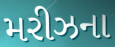
મરીઝના